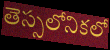
తెస్సలోనికలో